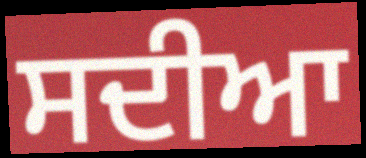
ਸਦੀਆ